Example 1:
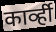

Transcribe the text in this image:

कार्व्ही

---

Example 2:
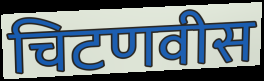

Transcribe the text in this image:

चिटणवीस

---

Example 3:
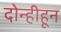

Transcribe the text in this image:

दोन्हीहून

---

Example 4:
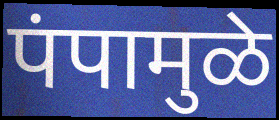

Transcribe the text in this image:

पंपामुळे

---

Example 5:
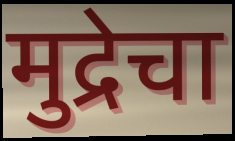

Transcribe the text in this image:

मुद्रेचा